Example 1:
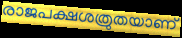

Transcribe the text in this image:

രാജപക്ഷശത്രുതയാണ്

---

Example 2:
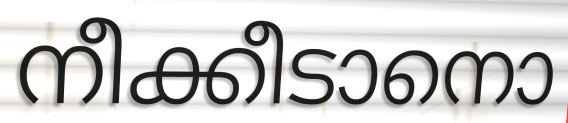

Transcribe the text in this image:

നീക്കീടാനൊ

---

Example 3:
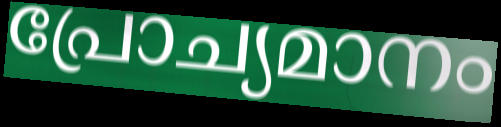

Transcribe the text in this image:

പ്രോച്യമാനം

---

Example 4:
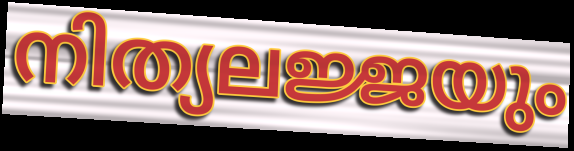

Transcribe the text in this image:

നിത്യലജ്ജയും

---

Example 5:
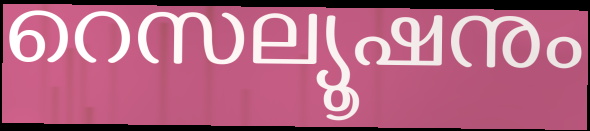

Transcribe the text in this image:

റെസല്യൂഷനും